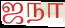
ஜநா